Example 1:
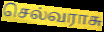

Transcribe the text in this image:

செல்வராசு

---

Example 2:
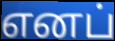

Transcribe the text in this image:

எனப்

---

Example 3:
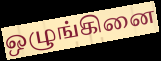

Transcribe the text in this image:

ஒழுங்கினை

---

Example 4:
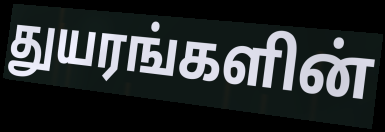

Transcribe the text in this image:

துயரங்களின்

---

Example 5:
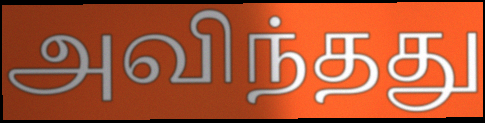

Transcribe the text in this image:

அவிந்தது